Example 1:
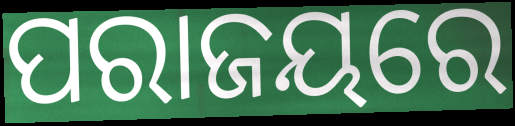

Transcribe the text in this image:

ପରାଜୟରେ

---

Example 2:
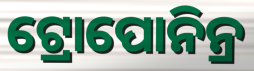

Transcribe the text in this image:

ଟ୍ରୋପୋନିନ୍ର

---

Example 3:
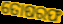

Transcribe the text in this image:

ତୋଷରଫ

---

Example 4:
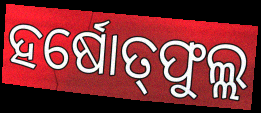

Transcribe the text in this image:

ହର୍ଷୋତ୍‌ଫୁଲ୍ଲ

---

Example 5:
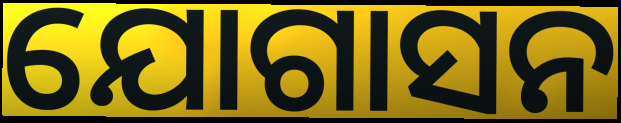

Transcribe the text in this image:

ଯୋଗାସନ